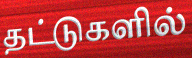
தட்டுகளில்